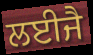
ਲਈਜੈ